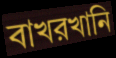
বাখরখানি